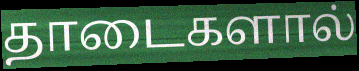
தாடைகளால்